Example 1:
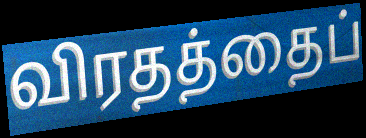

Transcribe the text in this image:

விரதத்தைப்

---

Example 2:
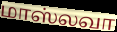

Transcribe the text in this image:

மாஸ்லவா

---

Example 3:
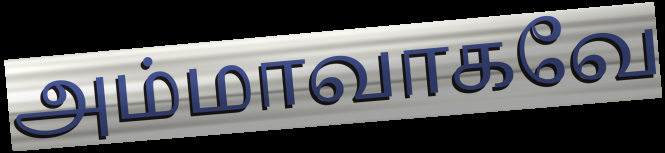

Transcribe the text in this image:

அம்மாவாகவே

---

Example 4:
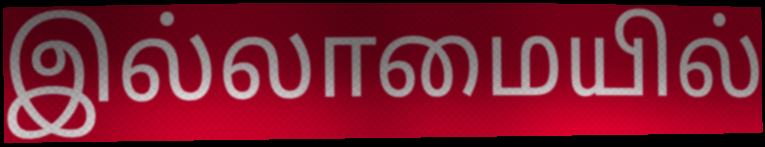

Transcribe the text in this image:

இல்லாமையில்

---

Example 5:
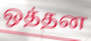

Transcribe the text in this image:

ஒத்தன